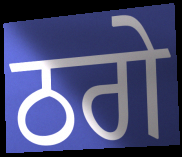
ਠਗੇ